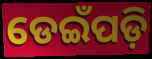
ଡେଇଁପଡ଼ି